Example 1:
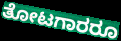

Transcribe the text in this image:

ತೋಟಗಾರರೂ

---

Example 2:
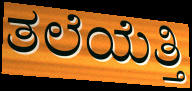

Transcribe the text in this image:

ತಲೆಯೆತ್ತಿ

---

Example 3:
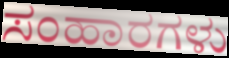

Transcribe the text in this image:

ಸಂಹಾರಗಳು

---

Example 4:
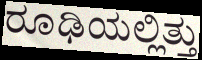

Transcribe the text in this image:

ರೂಢಿಯಲ್ಲಿತ್ತು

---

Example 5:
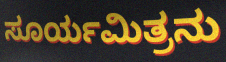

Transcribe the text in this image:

ಸೂರ್ಯಮಿತ್ರನು